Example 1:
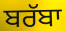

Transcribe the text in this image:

ਬਰੱਬਾ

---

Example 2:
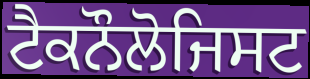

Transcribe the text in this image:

ਟੈਕਨੌਲੋਜਿਸਟ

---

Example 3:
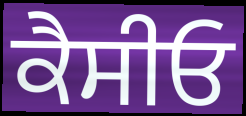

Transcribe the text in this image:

ਕੈਸੀਓ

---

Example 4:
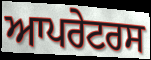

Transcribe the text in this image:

ਆਪਰੇਟਰਸ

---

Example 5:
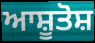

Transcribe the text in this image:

ਆਸ਼ੂਤੋਸ਼